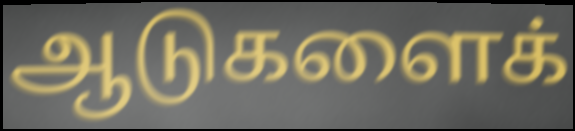
ஆடுகளைக்